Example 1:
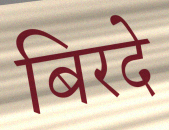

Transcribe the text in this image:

बिरदे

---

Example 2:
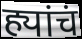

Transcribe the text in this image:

ह्यांचं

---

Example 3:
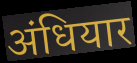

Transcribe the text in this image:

अंधियार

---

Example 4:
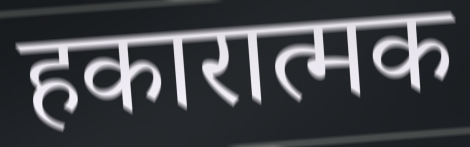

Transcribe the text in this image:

हकारात्मक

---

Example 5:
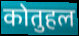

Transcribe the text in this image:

कोतुहल